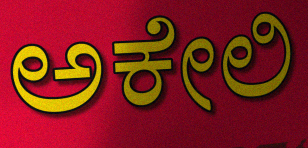
ಅಕೇಲಿ